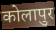
कोलापुर